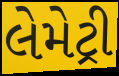
લેમેટ્રી